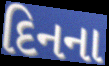
દિનના